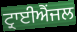
ਟ੍ਰਾਈਐਂਜਲ